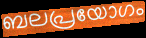
ബലപ്രയോഗം